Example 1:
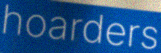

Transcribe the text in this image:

hoarders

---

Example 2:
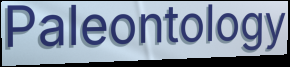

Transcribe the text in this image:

Paleontology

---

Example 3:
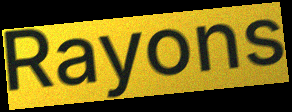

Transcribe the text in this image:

Rayons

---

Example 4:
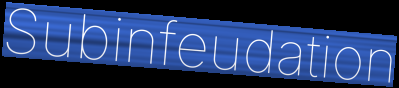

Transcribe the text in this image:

Subinfeudation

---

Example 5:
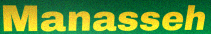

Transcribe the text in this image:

Manasseh